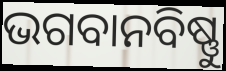
ଭଗବାନବିଷ୍ଣୁ